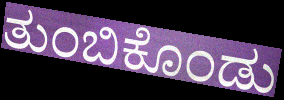
ತುಂಬಿಕೊಂಡು